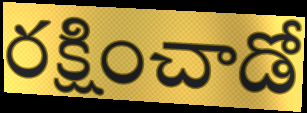
రక్షించాడో